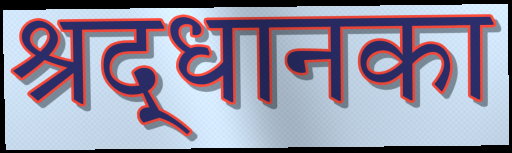
श्रद्धानका